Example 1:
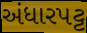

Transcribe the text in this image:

અંધારપટ્ટ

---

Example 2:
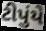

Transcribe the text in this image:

ટીપુંયે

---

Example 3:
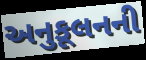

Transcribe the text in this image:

અનુકૂલનની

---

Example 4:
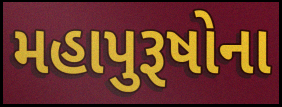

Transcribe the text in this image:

મહાપુરૂષોના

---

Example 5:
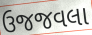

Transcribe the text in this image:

ઉજજવલા